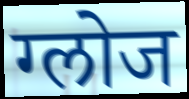
ग्लोज